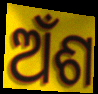
ଅଁଶ